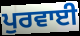
ਪੁਰਵਾਈ